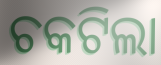
ଚକଟିଲା